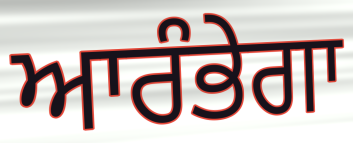
ਆਰੰਭੇਗਾ